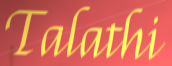
Talathi